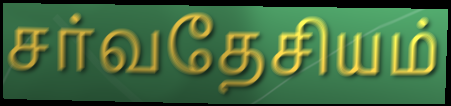
சர்வதேசியம்